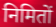
निमितों